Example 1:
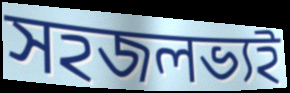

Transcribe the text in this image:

সহজলভ্যই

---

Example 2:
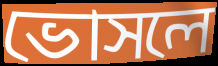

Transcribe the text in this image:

ভোসলে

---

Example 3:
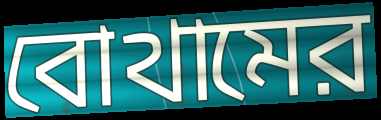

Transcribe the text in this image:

বোথামের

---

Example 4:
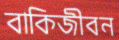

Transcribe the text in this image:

বাকিজীবন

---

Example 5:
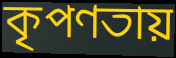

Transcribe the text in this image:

কৃপণতায়